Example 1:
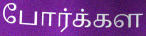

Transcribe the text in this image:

போர்க்கள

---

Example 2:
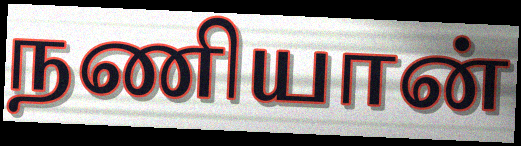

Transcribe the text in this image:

நணியான்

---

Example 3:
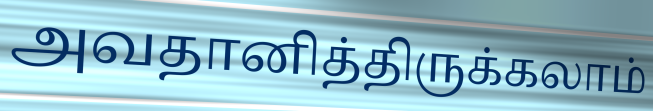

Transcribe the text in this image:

அவதானித்திருக்கலாம்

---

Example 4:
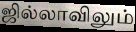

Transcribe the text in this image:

ஜில்லாவிலும்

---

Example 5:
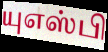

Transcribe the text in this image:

யுஎஸ்பி